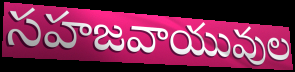
సహజవాయువుల